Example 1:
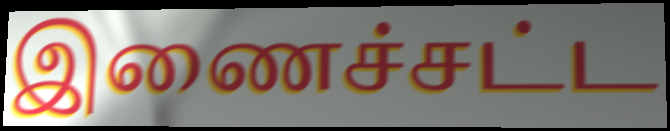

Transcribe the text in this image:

இணைச்சட்ட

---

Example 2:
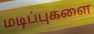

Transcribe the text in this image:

மடிப்புகளை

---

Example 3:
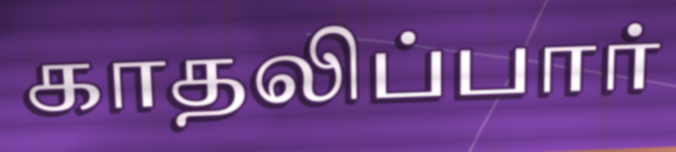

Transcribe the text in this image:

காதலிப்பார்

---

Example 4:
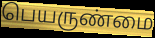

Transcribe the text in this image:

பெயருண்மை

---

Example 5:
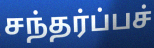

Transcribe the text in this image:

சந்தர்ப்பச்